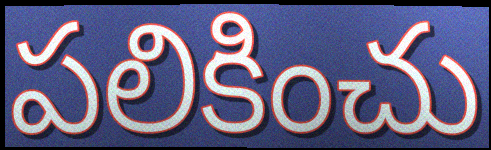
పలికించు